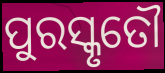
ପୁରସ୍କୃତୌ